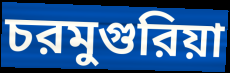
চরমুগুরিয়া